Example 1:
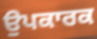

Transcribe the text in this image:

ਉਪਕਾਰਕ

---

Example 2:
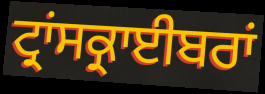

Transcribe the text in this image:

ਟ੍ਰਾਂਸਕ੍ਰਾਈਬਰਾਂ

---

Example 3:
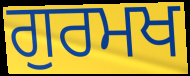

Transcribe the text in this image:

ਗੁਰਮਖ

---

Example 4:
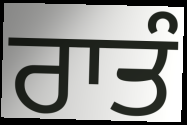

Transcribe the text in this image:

ਰਾਤੰ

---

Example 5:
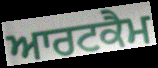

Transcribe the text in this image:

ਆਰਟਕੈਮ